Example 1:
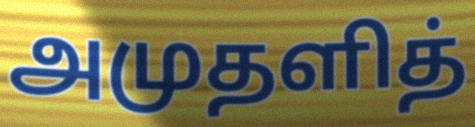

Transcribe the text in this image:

அமுதளித்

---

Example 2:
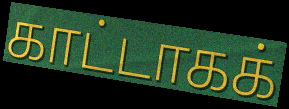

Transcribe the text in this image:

காட்டாகக்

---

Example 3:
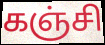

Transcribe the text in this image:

கஞ்சி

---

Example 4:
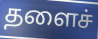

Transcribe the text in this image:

தளைச்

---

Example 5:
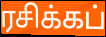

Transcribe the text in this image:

ரசிக்கப்